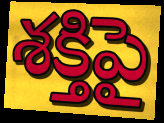
శక్తిపై